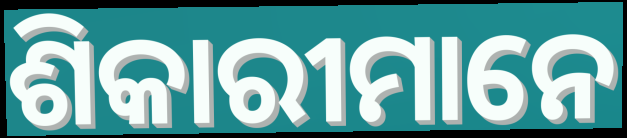
ଶିକାରୀମାନେ